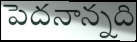
పెదనాన్నది